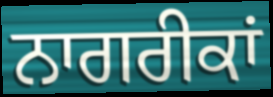
ਨਾਗਰੀਕਾਂ